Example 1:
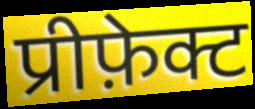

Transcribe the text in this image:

प्रीफ़ेक्ट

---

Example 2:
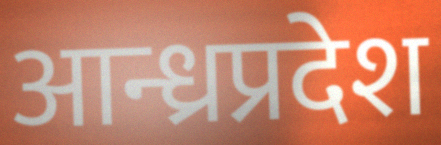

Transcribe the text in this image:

आन्ध्रप्रदेश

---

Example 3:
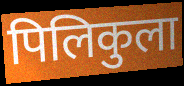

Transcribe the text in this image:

पिलिकुला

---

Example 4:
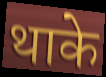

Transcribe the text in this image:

थाके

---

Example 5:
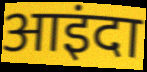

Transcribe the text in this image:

आइंदा